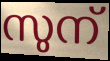
സുന്